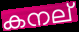
കനല്